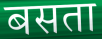
बसता